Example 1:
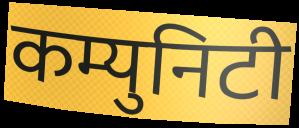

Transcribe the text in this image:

कम्युनिटी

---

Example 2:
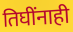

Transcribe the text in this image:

तिघींनाही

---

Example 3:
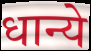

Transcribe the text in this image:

धान्ये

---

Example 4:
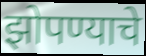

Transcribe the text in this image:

झोपण्याचे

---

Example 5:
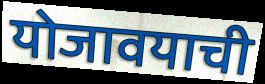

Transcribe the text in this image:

योजावयाची